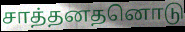
சாத்தனதனொடு